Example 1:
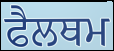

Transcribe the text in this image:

ਫੈਲਥਮ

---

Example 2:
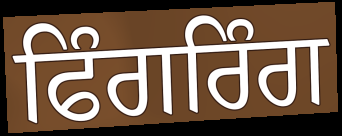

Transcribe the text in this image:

ਫਿੰਗਰਿੰਗ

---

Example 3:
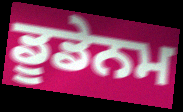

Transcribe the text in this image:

ਡੂਡੇਨਮ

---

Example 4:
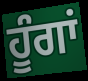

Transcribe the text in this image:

ਹੂੰਗਾਂ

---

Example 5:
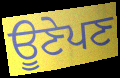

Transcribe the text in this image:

ਊਣੇਪਣ